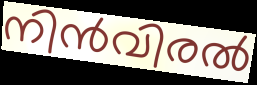
നിൻവിരൽ